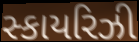
સ્કાયરિઝી